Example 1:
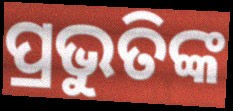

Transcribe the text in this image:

ପ୍ରଭୁତିଙ୍କ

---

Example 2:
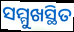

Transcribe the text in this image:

ସମ୍ମୁଖସ୍ଥିତ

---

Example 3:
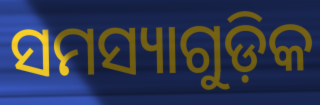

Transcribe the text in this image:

ସମସ୍ୟାଗୁଡ଼ିକ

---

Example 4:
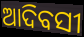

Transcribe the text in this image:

ଆଦିବସୀ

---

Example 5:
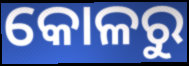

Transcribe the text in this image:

କୋଳରୁ